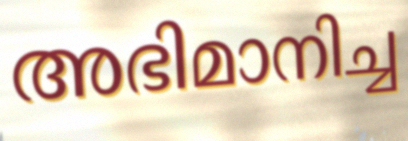
അഭിമാനിച്ച